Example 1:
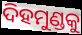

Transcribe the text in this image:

ଦିହମୁଣ୍ଡକୁ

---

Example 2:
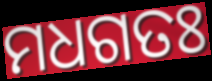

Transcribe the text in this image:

ମଧଗତଃ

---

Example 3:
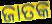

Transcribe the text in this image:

ଜାତକ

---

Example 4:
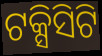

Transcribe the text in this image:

ଟକ୍ସିସିଟି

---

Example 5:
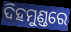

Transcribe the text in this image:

ଦିହମୁଣ୍ଡରେ